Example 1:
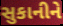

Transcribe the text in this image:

સુકાનીને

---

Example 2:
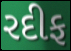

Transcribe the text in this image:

રદીફ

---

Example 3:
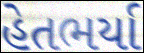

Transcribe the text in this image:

હેતભર્યા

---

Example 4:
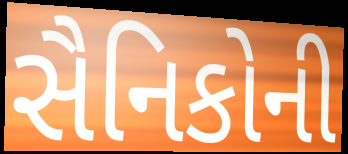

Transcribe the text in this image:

સૈનિકોની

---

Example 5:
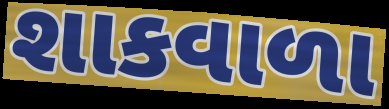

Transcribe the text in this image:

શાકવાળા